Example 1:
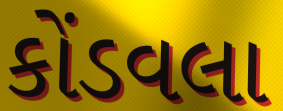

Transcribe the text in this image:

કોંડવલા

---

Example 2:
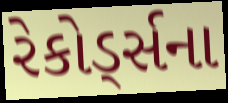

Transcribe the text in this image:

રેકોર્ડ્સના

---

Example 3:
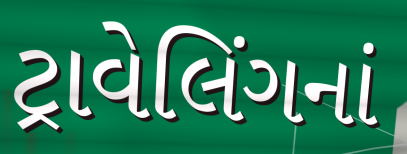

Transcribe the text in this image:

ટ્રાવેલિંગનાં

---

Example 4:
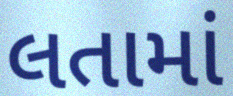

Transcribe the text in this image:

લતામાં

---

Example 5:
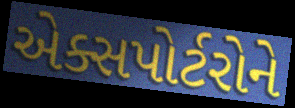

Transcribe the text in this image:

એક્સપોર્ટરોને